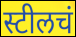
स्टीलचं